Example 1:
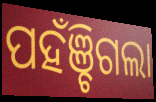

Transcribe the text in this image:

ପହଁଞ୍ଚିଗଲା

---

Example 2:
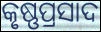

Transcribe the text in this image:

କୃଷ୍ଣପ୍ରସାଦ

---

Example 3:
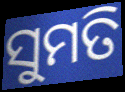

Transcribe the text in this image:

ସୁମତି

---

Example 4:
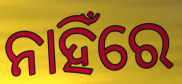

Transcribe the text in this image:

ନାହିଁରେ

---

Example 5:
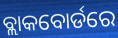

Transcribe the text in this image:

ବ୍ଲାକବୋର୍ଡରେ